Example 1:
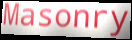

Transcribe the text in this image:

Masonry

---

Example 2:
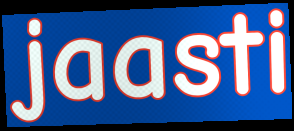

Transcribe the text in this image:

jaasti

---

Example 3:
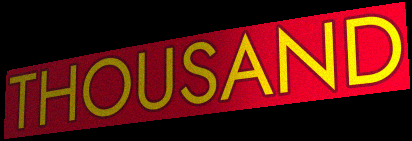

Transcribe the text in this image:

THOUSAND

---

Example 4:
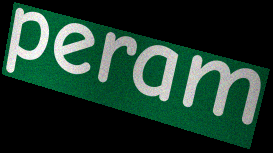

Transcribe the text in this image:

peram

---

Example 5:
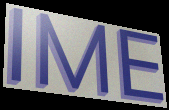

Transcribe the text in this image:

IME